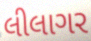
લીલાગર